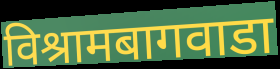
विश्रामबागवाडा